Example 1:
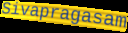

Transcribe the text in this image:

Sivapragasam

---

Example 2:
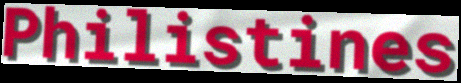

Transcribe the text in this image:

Philistines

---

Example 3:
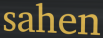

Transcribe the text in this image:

sahen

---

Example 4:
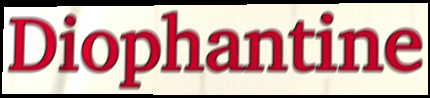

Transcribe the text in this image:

Diophantine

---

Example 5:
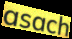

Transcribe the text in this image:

asach